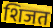
शिजत